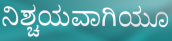
ನಿಶ್ಚಯವಾಗಿಯೂ